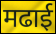
मढाई